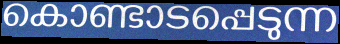
കൊണ്ടാടപ്പെടുന്ന